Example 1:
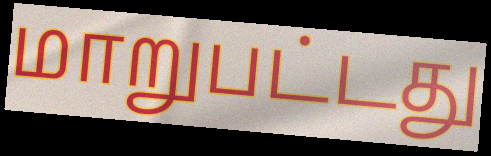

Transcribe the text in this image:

மாறுபட்டது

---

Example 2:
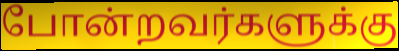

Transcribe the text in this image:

போன்றவர்களுக்கு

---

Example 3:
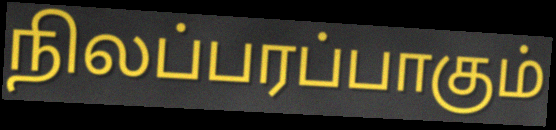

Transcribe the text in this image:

நிலப்பரப்பாகும்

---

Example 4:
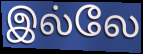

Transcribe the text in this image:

இல்லே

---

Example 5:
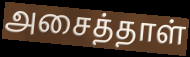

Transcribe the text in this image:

அசைத்தாள்